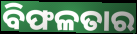
ବିଫଳତାର